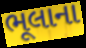
ભૂલાના